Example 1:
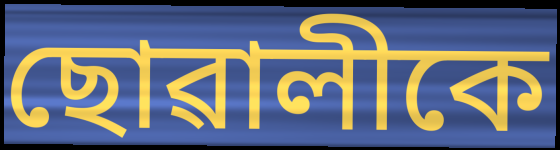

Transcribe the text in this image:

ছোৱালীকে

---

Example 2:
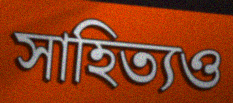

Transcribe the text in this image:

সাহিত্যও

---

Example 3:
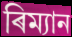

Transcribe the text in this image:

ৰিম্যান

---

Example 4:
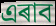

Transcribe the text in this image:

এৰাব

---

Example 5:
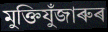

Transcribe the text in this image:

মুক্তিযুঁজাৰুৰ